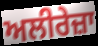
ਅਲੀਰੇਜ਼ਾ